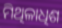
ମିଥିଳାଧିଶ